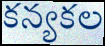
కన్యకల